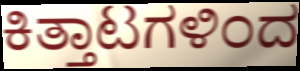
ಕಿತ್ತಾಟಗಳಿಂದ